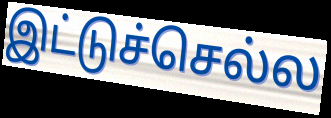
இட்டுச்செல்ல